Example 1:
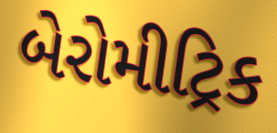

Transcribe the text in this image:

બેરોમીટ્રિક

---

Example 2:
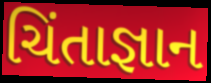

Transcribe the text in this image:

ચિંતાજ્ઞાન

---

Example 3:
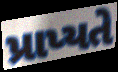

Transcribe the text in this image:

પ્રાપ્યતે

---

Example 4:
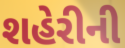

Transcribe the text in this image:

શહેરીની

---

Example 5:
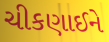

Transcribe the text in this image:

ચીકણાઈને